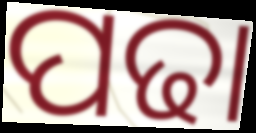
ପଢା